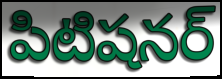
పిటిషనర్